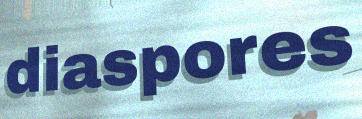
diaspores